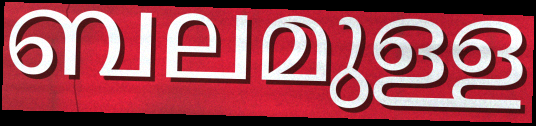
ബലമുള്ള